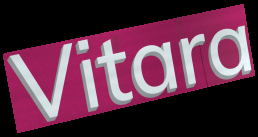
Vitara